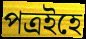
পত্ৰইহে